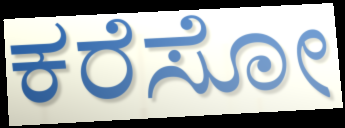
ಕರೆಸೋ